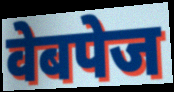
वेबपेज